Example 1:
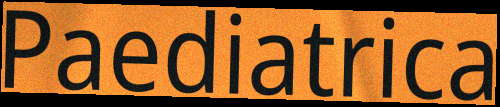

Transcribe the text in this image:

Paediatrica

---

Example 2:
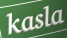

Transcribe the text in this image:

kasla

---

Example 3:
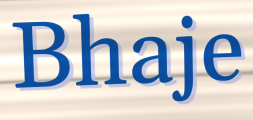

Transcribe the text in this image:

Bhaje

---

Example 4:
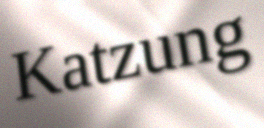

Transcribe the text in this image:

Katzung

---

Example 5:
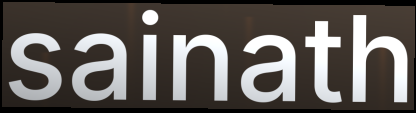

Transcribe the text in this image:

sainath